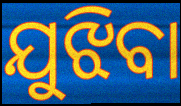
ଯୁଝିବା